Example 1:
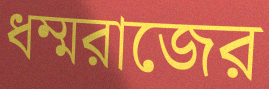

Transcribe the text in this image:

ধম্মরাজের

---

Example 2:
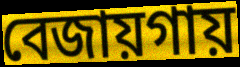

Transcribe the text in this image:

বেজায়গায়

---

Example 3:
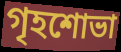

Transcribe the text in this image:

গৃহশোভা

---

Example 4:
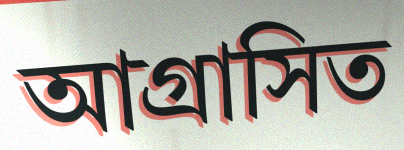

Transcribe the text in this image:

আগ্রাসিত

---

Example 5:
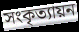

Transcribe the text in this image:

সংকৃত্যায়ন